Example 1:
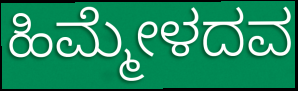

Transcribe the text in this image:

ಹಿಮ್ಮೇಳದವ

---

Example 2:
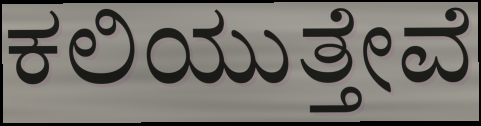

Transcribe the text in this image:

ಕಲಿಯುತ್ತೇವೆ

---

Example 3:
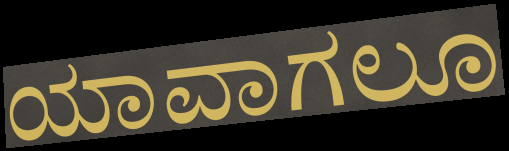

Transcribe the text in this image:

ಯಾವಾಗಲೂ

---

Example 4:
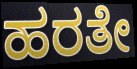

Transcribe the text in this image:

ಹರತೇ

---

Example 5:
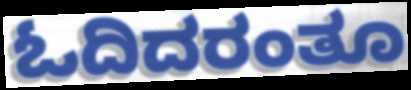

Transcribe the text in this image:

ಓದಿದರಂತೂ